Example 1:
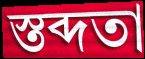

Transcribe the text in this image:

স্তব্দতা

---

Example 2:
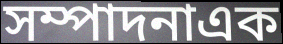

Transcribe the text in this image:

সম্পাদনাএক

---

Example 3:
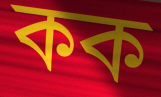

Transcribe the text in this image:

কক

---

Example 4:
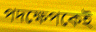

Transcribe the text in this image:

পদক্ষেপকেই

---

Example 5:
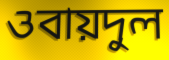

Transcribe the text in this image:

ওবায়দুল